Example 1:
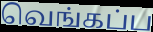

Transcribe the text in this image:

வெங்கப்ப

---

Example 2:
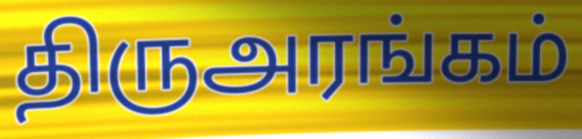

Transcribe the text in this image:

திருஅரங்கம்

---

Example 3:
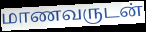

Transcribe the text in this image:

மாணவருடன்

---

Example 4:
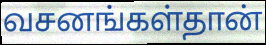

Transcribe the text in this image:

வசனங்கள்தான்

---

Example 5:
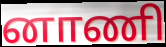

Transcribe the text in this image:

னாணி